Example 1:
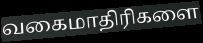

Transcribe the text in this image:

வகைமாதிரிகளை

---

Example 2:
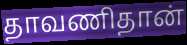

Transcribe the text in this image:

தாவணிதான்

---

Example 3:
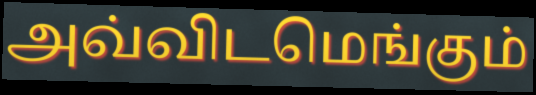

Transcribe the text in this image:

அவ்விடமெங்கும்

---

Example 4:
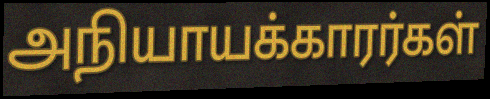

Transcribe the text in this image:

அநியாயக்காரர்கள்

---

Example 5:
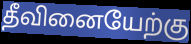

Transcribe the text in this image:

தீவினையேற்கு